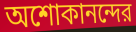
অশোকানন্দের